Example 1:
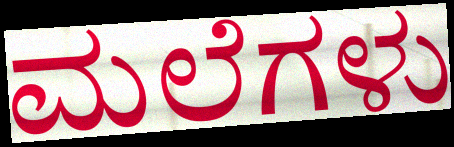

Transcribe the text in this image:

ಮಲೆಗಳು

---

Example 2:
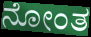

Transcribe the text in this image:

ನೋಂತ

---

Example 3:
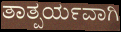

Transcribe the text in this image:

ತಾತ್ಪರ್ಯವಾಗಿ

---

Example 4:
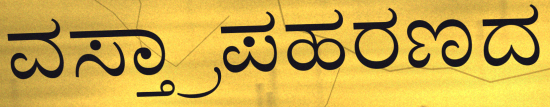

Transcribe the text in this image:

ವಸ್ತ್ರಾಪಹರಣದ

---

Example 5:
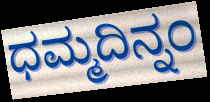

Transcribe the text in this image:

ಧಮ್ಮದಿನ್ನಂ